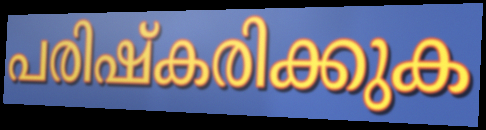
പരിഷ്കരിക്കുക